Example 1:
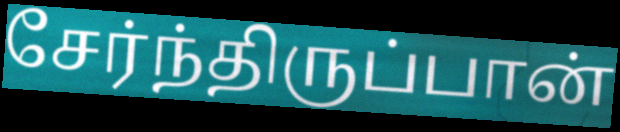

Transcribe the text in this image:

சேர்ந்திருப்பான்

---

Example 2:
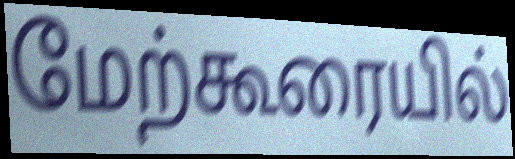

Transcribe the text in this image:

மேற்கூரையில்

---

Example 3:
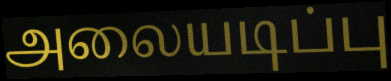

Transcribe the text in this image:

அலையடிப்பு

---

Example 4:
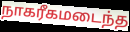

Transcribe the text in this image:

நாகரீகமடைந்த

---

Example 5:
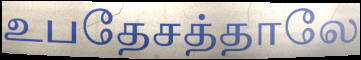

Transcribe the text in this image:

உபதேசத்தாலே